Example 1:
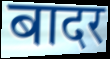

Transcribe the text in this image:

बादर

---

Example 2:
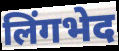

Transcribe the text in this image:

लिंगभेद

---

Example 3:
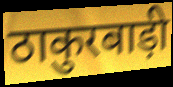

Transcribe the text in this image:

ठाकुरबाड़ी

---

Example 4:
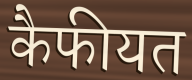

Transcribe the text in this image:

कैफीयत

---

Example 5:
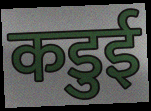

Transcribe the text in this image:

कडुई